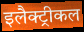
इलैक्ट्रीकल